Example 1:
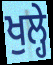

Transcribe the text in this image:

ਖੁਲ੍ਹੇ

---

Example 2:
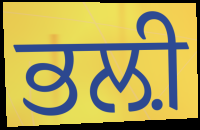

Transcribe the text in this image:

ਭਲ਼ੀ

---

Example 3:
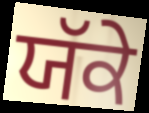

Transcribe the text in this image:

ਯੱਕੇ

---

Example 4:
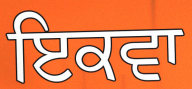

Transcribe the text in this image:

ਇਕਵਾ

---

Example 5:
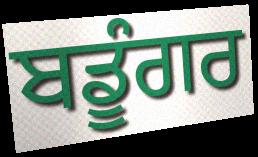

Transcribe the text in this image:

ਬਡੂੰਗਰ